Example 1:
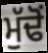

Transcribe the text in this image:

ਮੁੱਢੋਂ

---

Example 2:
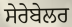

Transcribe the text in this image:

ਸੇਰੇਬੇਲਰ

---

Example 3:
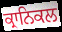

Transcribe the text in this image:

ਕ੍ਰਾਨਿਕਲ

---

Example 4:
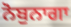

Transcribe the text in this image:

ਨੋਬੁਨਾਗਾ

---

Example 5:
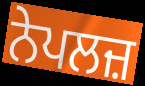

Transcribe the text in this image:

ਨੇਪਲਜ਼